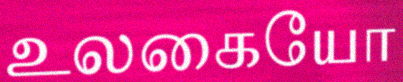
உலகையோ